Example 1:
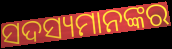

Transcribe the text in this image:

ସଦସ୍ୟମାନଙ୍କର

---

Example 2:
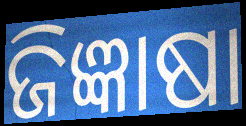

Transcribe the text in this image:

ଜିଜ୍ଞାଷା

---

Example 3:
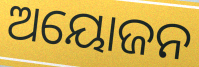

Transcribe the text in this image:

ଅୟୋଜନ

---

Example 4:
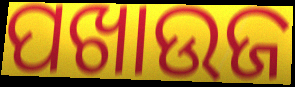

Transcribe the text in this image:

ପଖାଉଜ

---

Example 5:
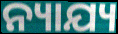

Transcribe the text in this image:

ନ୍ୟାଯ୍ୟ